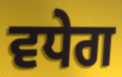
ਵਧੇਗ